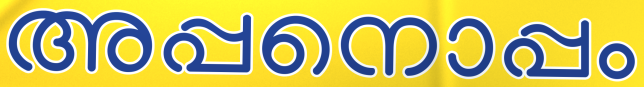
അപ്പനൊപ്പം